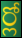
ర్లో